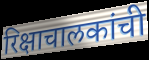
रिक्षाचालकांची